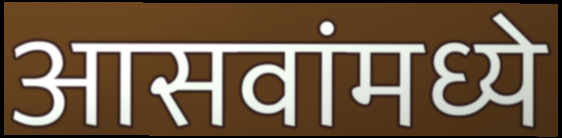
आसवांमध्ये